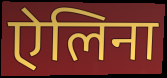
ऐलिना